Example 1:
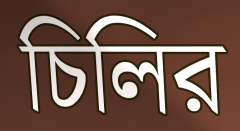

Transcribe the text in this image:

চিলির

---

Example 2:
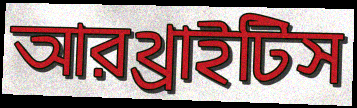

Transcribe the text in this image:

আরথ্রাইটিস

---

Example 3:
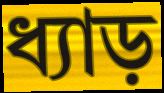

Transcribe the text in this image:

ধ্যাড়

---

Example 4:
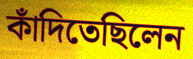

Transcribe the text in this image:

কাঁদিতেছিলেন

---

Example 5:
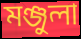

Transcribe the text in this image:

মঞ্জুলা